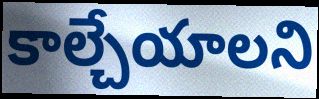
కాల్చేయాలని